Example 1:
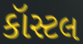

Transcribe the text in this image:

કૉસ્ટલ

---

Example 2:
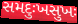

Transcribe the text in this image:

સમદુઃખસુખઃ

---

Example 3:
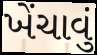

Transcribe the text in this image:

ખેંચાવું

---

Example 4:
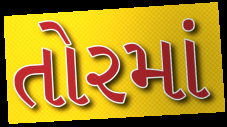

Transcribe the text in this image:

તોરમાં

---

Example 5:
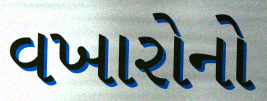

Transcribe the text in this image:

વખારોનો